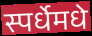
स्पर्धेमधे